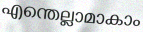
എന്തെല്ലാമാകാം